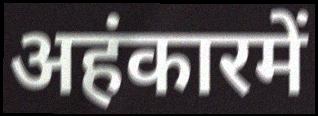
अहंकारमें